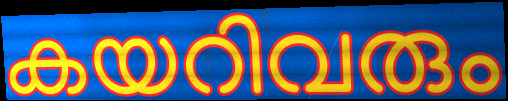
കയറിവരും